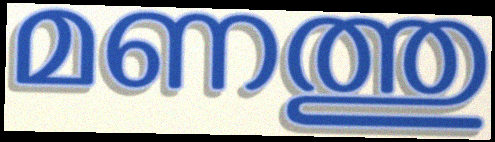
മണത്തു